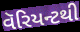
વૅરિયન્ટથી